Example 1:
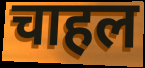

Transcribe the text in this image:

चाहल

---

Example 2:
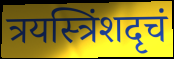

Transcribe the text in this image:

त्रयस्त्रिंशदृचं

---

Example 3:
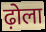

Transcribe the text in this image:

ढ़ोला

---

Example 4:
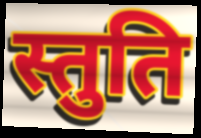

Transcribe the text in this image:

स्तुति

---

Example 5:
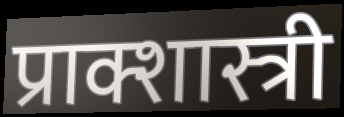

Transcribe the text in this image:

प्राक्शास्त्री